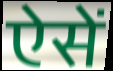
ऐसें